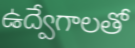
ఉద్వేగాలతో